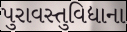
પુરાવસ્તુવિદ્યાના